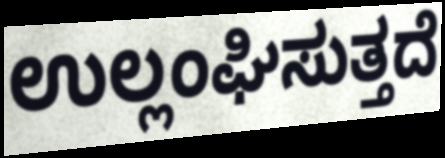
ಉಲ್ಲಂಘಿಸುತ್ತದೆ